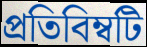
প্রতিবিম্বটি